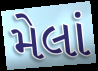
મેલાં